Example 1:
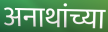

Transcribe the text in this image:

अनाथांच्या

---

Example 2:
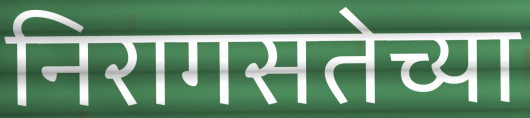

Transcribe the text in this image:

निरागसतेच्या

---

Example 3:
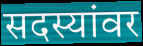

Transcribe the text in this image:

सदस्यांवर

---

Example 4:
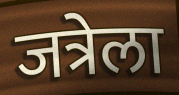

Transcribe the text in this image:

जत्रेला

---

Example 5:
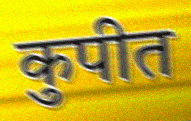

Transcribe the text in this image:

कुपीत